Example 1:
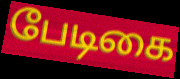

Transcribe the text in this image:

பேடிகை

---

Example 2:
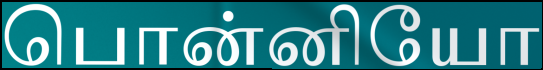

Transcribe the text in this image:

பொன்னியோ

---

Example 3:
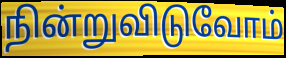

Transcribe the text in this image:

நின்றுவிடுவோம்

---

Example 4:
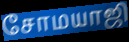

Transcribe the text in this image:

சோமயாஜி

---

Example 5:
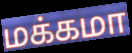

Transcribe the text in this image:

மக்கமா